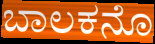
ಬಾಲಕನೊ